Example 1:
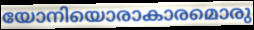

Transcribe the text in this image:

യോനിയൊരാകാരമൊരു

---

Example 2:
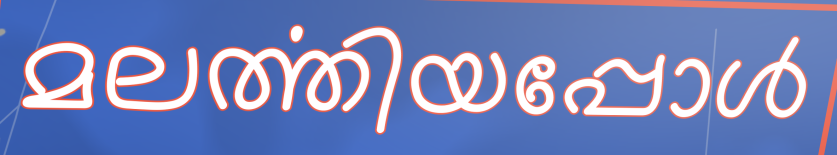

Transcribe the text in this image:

മലൎത്തിയപ്പോൾ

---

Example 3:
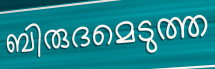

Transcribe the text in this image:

ബിരുദമെടുത്ത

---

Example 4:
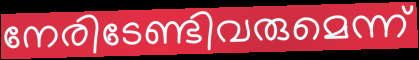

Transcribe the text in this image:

നേരിടേണ്ടിവരുമെന്ന്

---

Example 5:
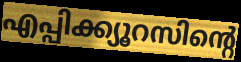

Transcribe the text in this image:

എപ്പിക്ക്യൂറസിന്റെ